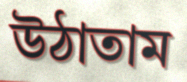
উঠাতাম